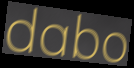
dabo